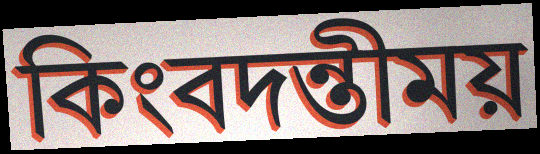
কিংবদন্তীময়